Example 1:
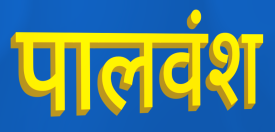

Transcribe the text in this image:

पालवंश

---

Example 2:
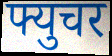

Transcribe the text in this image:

फ्युचर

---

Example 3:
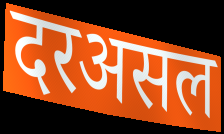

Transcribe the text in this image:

दरअसल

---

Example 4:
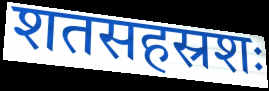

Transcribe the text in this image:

शतसहस्रशः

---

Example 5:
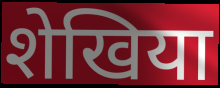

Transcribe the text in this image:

शेखिया